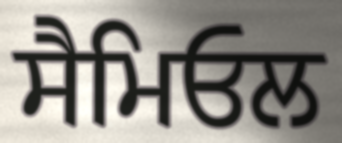
ਸੈਮਿਓਲ